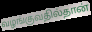
வழங்குவதில்தான்